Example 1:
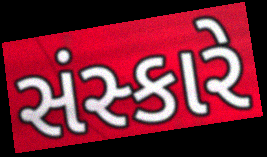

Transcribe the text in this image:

સંસ્કારે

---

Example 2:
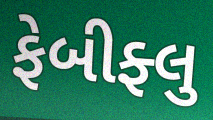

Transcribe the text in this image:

ફેબીફ્લુ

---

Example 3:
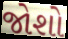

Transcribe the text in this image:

જોશો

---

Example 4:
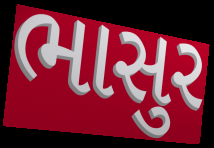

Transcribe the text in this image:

ભાસુર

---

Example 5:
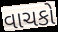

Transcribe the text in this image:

વાચકો